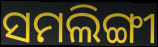
ସମଲିଙ୍ଗୀ